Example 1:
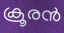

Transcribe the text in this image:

ക്രൂരൻ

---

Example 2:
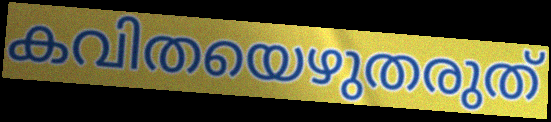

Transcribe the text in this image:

കവിതയെഴുതരുത്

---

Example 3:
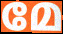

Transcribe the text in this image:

മേ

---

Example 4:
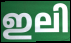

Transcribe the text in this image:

ഇലി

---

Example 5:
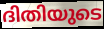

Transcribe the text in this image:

ദിതിയുടെ